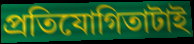
প্রতিযোগিতাটাই